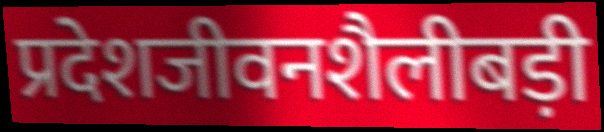
प्रदेशजीवनशैलीबड़ी